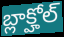
బ్లాక్హోల్